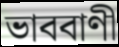
ভাববাণী